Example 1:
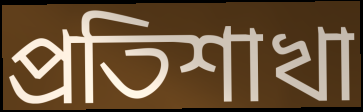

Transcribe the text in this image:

প্রতিশাখা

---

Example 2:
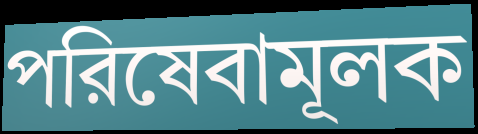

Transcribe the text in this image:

পরিষেবামূলক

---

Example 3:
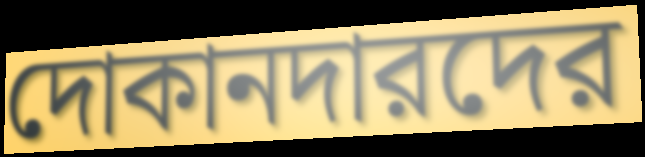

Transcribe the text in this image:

দোকানদারদের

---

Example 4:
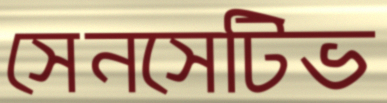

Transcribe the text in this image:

সেনসেটিভ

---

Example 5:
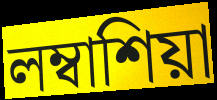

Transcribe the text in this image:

লম্বাশিয়া